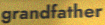
grandfather